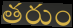
తరుం